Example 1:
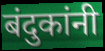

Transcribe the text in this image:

बंदुकांनी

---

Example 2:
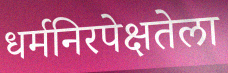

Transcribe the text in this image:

धर्मनिरपेक्षतेला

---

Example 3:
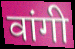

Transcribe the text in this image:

वांगी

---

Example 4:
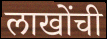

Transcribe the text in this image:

लाखोंची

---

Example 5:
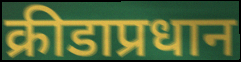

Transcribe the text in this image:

क्रीडाप्रधान